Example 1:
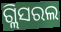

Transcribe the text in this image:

ଗ୍ଲିସରଲ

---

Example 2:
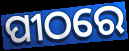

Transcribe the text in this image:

ପୀଠରେ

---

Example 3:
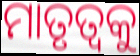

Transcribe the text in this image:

ମାତୃତ୍ବକୁ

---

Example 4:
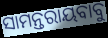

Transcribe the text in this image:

ସାମନ୍ତରାୟବାବୁ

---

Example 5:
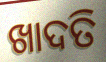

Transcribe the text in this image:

ଖାଦତି